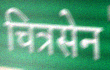
चित्रसेन